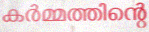
കർമ്മത്തിന്റെ